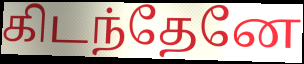
கிடந்தேனே